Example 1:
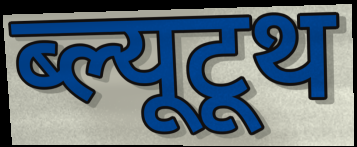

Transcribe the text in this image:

ब्ल्यूटूथ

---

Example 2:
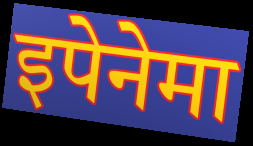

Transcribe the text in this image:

इपेनेमा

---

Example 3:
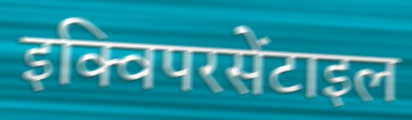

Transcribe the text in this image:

इक्विपरसेंटाइल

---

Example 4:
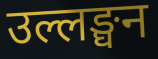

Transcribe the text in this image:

उल्लङ्घन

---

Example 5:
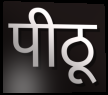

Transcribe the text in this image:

पीठू